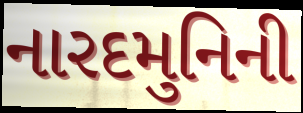
નારદમુનિની